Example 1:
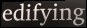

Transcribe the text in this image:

edifying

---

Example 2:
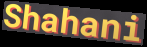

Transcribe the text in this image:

Shahani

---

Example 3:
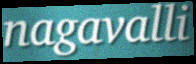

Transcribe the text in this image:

nagavalli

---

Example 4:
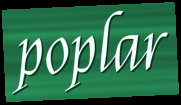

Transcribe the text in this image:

poplar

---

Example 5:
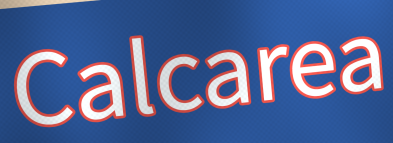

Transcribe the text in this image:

Calcarea